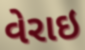
વેરાઇ